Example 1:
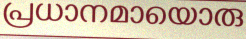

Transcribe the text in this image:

പ്രധാനമായൊരു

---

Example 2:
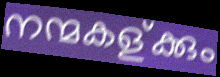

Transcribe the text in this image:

നന്മകള്ക്കും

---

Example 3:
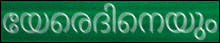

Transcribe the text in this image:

യേരെദിനെയും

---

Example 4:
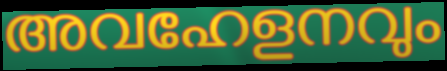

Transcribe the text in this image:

അവഹേളനവും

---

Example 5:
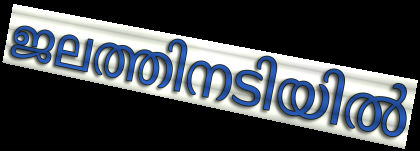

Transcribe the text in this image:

ജലത്തിനടിയിൽ